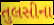
તુલસીના